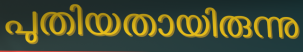
പുതിയതായിരുന്നു